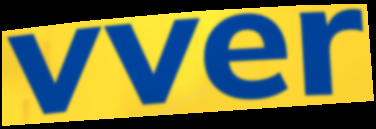
vver